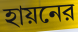
হায়নের